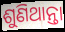
ଶୁଣିଥାନ୍ତା